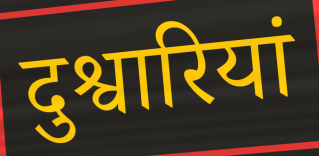
दुश्वारियां